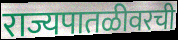
राज्यपातळीवरची